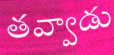
తవ్వాడు